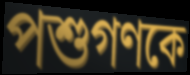
পশুগণকে